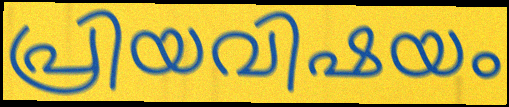
പ്രിയവിഷയം